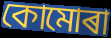
কোমোৰা